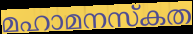
മഹാമനസ്കത